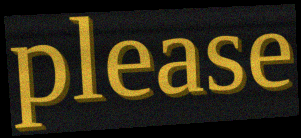
please